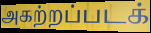
அகற்றப்படக்